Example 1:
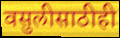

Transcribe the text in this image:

वसुलीसाठीही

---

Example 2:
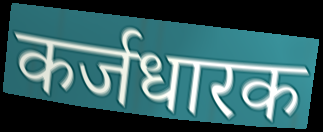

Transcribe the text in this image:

कर्जधारक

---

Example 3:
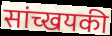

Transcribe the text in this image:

सांच्खयकी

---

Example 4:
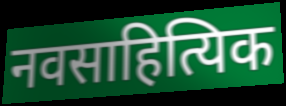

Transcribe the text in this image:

नवसाहित्यिक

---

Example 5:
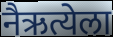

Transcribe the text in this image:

नैऋत्येला